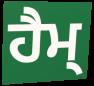
ਹੈਮ੍